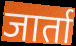
जार्ता